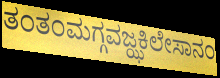
ತಂತಂಮಗ್ಗವಜ್ಝಕಿಲೇಸಾನಂ